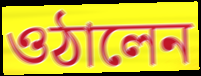
ওঠালেন